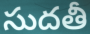
సుదతీ